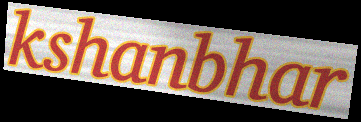
kshanbhar